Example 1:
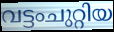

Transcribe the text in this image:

വട്ടംചുറ്റിയ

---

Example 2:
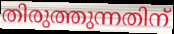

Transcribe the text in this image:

തിരുത്തുന്നതിന്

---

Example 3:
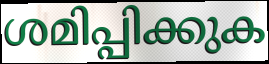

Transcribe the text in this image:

ശമിപ്പിക്കുക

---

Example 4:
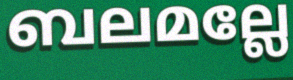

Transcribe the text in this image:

ബലമല്ലേ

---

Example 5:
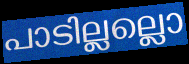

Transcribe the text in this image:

പാടില്ലല്ലൊ